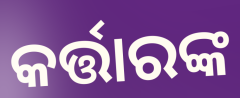
କର୍ତ୍ତାରଙ୍କ